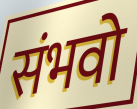
संभवो